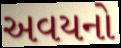
અવયનો